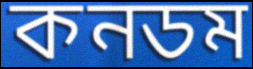
কনডম